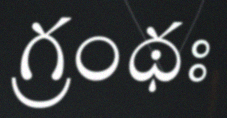
గ్రంథః